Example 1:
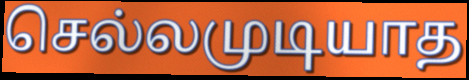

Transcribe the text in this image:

செல்லமுடியாத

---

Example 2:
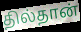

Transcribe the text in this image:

தில்தான்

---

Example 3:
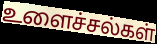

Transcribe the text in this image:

உளைச்சல்கள்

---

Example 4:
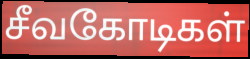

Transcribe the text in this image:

சீவகோடிகள்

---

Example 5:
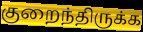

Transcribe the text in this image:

குறைந்திருக்க